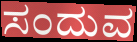
ಸಂದುವ